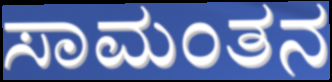
ಸಾಮಂತನ